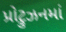
પ્રોટ્રુઝનમાં